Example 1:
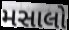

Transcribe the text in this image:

મસાલો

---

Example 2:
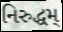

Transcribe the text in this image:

નિરુદ્ધમ્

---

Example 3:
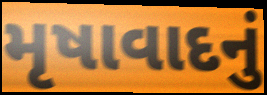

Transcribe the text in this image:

મૃષાવાદનું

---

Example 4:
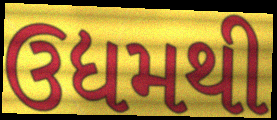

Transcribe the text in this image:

ઉદ્યમથી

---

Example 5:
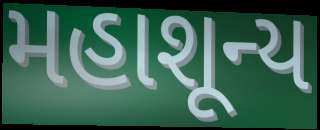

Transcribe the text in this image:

મહાશૂન્ય